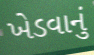
ખેડવાનું